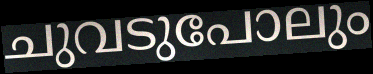
ചുവടുപോലും